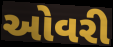
ઓવરી